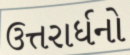
ઉત્તરાર્ધનો